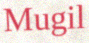
Mugil